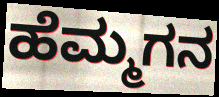
ಹೆಮ್ಮಗನ